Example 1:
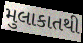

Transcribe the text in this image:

મુલાકાતથી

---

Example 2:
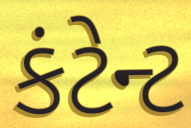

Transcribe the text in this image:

કંટેન્ટ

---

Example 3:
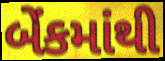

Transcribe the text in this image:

બેંકમાંથી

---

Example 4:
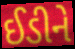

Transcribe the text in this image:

ઈડીને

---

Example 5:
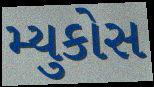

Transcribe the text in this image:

મ્યુકોસ